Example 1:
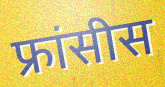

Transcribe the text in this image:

फ्रांसीस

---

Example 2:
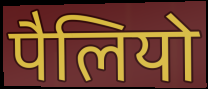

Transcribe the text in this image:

पैलियो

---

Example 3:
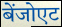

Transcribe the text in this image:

बेंजोएट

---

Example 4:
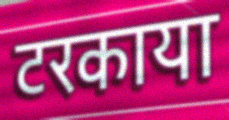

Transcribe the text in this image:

टरकाया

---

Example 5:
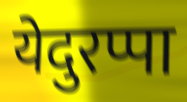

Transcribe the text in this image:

येदुरप्पा